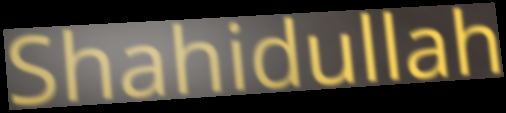
Shahidullah